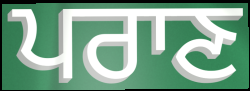
ਪਰਾਣ